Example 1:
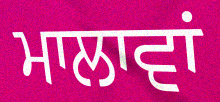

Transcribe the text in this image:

ਮਾਲਾਵਾਂ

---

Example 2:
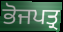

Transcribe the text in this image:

ਭੋਜਪਤ੍ਰ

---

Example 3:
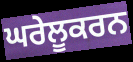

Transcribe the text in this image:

ਘਰੇਲੂਕਰਨ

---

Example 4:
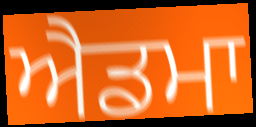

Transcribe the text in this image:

ਐਡਮਾ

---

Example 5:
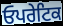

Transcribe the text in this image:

ਓਪਰੇਟਿਕ